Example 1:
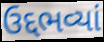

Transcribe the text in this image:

ઉદ્દભવ્યાં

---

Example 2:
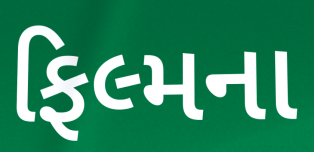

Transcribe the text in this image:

ફિલ્મના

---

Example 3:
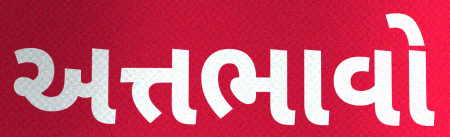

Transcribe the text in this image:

અત્તભાવો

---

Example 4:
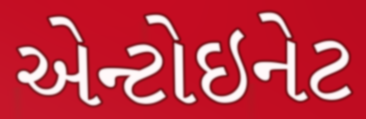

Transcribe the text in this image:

એન્ટોઇનેટ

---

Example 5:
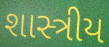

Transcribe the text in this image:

શાસ્ત્રીય